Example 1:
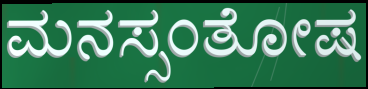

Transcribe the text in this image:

ಮನಸ್ಸಂತೋಷ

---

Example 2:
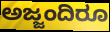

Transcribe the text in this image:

ಅಜ್ಜಂದಿರೂ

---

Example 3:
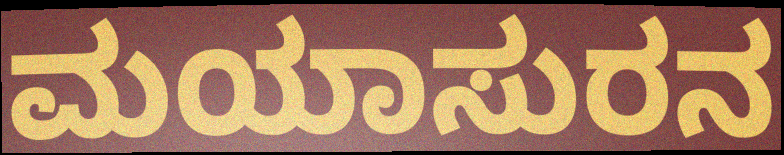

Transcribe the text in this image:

ಮಯಾಸುರನ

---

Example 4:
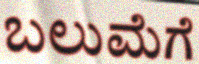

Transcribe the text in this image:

ಬಲುಮೆಗೆ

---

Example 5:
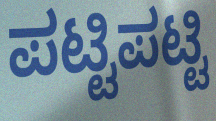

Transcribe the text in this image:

ಪಟ್ಟಿಪಟ್ಟಿ